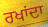
ਰਖਾਂਦਾ